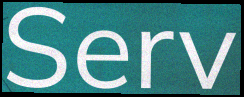
Serv